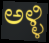
ಅಳ್ಳಿ